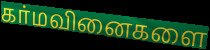
கர்மவினைகளை